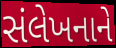
સંલેખનાને